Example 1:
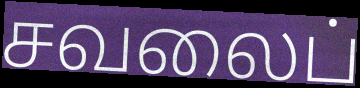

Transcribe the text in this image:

சவலைப்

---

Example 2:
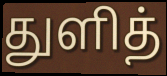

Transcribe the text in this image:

துளித்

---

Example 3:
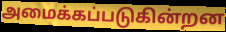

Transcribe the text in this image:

அமைக்கப்படுகின்றன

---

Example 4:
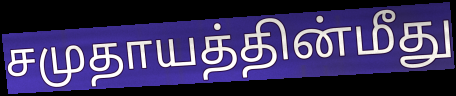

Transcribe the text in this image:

சமுதாயத்தின்மீது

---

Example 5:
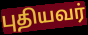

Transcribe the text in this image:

புதியவர்